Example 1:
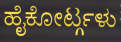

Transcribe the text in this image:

ಹೈಕೋರ್ಟ್ಗಳು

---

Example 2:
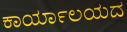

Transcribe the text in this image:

ಕಾರ್ಯಾಲಯದ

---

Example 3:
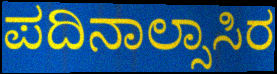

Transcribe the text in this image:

ಪದಿನಾಲ್ಸಾಸಿರ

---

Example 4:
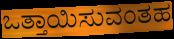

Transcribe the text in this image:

ಒತ್ತಾಯಿಸುವಂತಹ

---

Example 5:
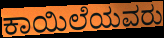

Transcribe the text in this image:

ಕಾಯಿಲೆಯವರು